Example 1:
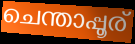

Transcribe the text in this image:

ചെന്താപ്പൂര്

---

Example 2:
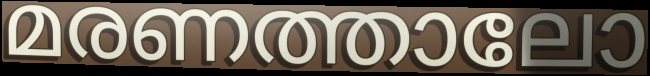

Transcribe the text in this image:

മരണത്താലോ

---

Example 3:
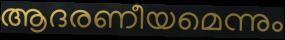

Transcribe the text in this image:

ആദരണീയമെന്നും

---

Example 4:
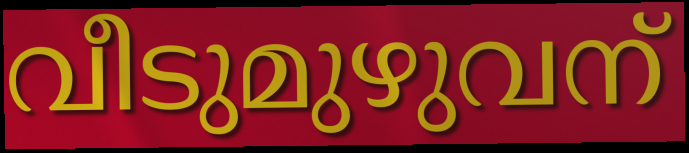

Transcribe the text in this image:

വീടുമുഴുവന്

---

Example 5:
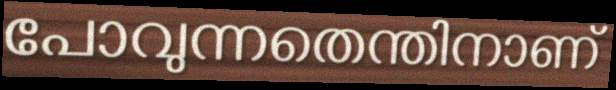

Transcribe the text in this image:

പോവുന്നതെന്തിനാണ്